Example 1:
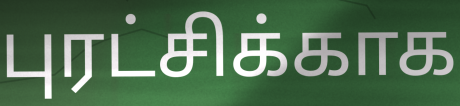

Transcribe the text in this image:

புரட்சிக்காக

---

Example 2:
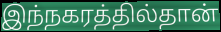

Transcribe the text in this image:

இந்நகரத்தில்தான்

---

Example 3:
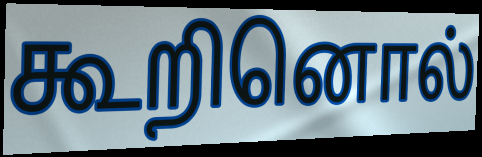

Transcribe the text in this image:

கூறினொல்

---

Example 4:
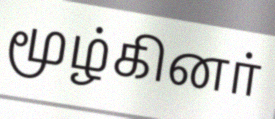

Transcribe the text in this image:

மூழ்கினர்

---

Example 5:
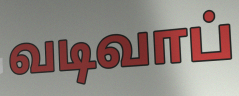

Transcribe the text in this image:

வடிவாப்